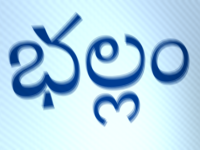
భల్లం